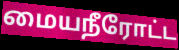
மையநீரோட்ட